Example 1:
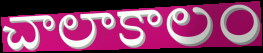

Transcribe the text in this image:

చాలాకాలం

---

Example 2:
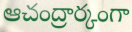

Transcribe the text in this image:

ఆచంద్రార్కంగా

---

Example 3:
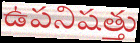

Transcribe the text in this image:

ఉపనిషత్తు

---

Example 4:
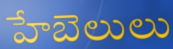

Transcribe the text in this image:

హేబెలులు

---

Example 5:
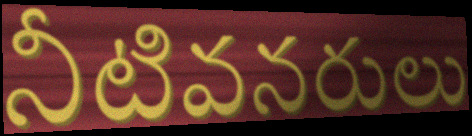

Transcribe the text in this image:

నీటివనరులు